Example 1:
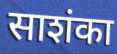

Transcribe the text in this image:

साशंका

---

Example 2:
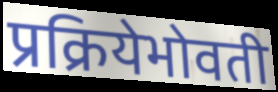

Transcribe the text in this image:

प्रक्रियेभोवती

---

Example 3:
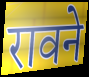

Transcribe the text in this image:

रावने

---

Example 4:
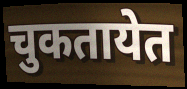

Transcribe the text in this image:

चुकतायेत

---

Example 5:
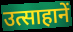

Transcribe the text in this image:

उत्साहानें